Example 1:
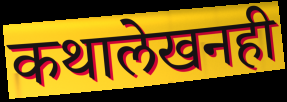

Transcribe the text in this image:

कथालेखनही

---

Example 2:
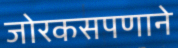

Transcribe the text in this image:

जोरकसपणाने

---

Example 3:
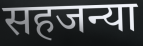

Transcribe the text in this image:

सहजन्या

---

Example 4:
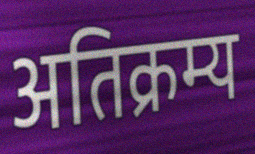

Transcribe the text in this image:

अतिक्रम्य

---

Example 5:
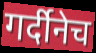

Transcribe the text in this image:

गर्दीनेच